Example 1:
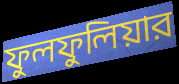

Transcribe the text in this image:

ফুলফুলিয়ার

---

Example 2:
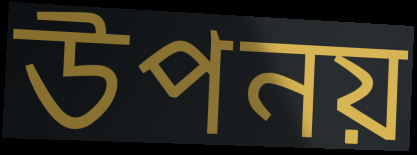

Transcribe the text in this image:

উপনয়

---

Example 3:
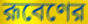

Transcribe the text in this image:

রূবেণের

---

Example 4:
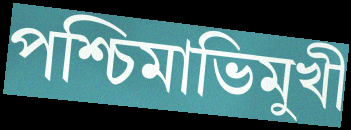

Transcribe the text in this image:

পশ্চিমাভিমুখী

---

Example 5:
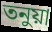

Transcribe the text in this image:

তনুয়া